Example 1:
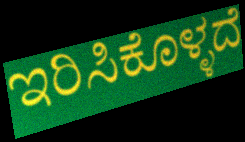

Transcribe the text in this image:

ಇರಿಸಿಕೊಳ್ಳದೆ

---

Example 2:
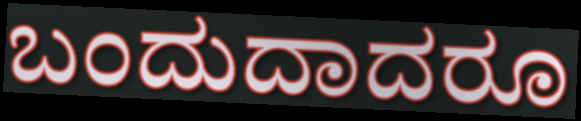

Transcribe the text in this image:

ಬಂದುದಾದರೂ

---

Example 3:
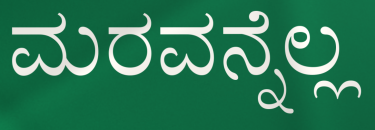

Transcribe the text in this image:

ಮರವನ್ನೆಲ್ಲ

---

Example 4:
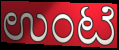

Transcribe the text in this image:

ಉಂಟೆ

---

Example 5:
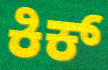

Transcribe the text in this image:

ಕಿಕ್